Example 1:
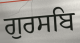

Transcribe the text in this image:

ਗੁਰਸਬਿ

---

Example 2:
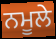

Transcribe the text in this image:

ਨਮੂਲੇ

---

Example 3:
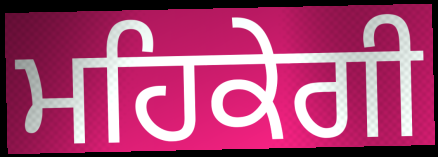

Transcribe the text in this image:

ਮਹਿਕੇਗੀ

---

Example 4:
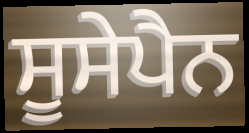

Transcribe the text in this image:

ਸੂਸੇਪੈਨ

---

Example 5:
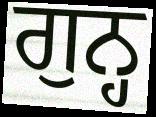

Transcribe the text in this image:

ਗੁਨ੍ਹ